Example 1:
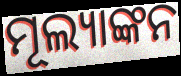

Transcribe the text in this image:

ମୂଲ୍ୟାଙ୍କନ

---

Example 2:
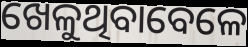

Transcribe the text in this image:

ଖେଳୁଥିବାବେଳେ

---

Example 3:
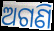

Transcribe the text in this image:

ଅଗଣି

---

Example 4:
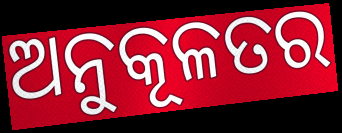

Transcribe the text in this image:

ଅନୁକୂଳତର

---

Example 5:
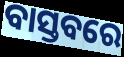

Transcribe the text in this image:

ବାସ୍ତବରେ